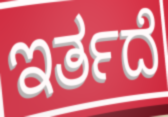
ಇರ್ತದೆ